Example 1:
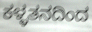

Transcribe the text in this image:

ಕಳ್ಳತನದಿಂದ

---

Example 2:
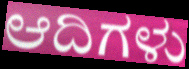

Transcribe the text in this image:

ಆದಿಗಳು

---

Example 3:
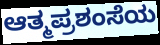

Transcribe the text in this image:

ಆತ್ಮಪ್ರಶಂಸೆಯ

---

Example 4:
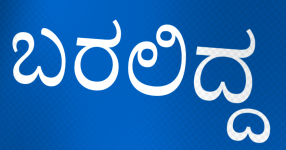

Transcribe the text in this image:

ಬರಲಿದ್ದ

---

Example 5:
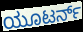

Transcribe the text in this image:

ಯೂಟರ್ನ್